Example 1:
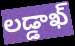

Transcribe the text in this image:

లడ్డాఖ్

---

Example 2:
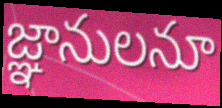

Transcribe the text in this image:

జ్ఞానులనూ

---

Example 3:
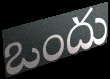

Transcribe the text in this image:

ఒందు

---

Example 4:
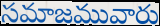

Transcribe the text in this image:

సమాజమువారు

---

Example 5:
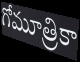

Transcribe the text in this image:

గోమూత్రికా